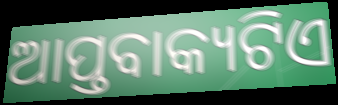
ଆପ୍ତବାକ୍ୟଟିଏ